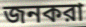
জনকরা